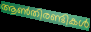
ആൺതിരണ്ടികൾ